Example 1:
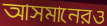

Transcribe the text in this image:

আসমানেরও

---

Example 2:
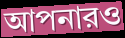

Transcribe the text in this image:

আপনারও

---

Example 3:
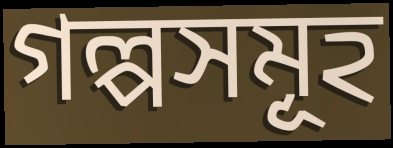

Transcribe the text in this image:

গল্পসমূহ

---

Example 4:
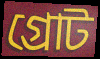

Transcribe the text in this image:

গ্রোট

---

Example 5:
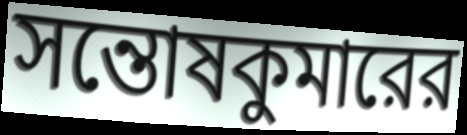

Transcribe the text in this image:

সন্তোষকুমারের